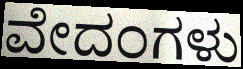
ವೇದಂಗಳು